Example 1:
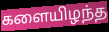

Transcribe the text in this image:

களையிழந்த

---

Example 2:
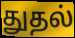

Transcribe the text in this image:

துதல்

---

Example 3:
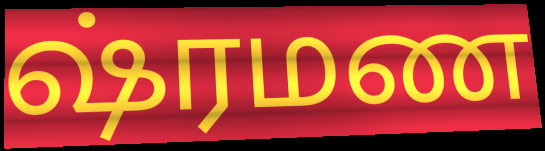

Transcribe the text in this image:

ஷ்ரமண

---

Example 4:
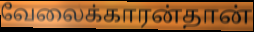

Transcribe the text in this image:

வேலைக்காரன்தான்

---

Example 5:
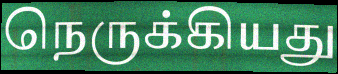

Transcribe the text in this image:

நெருக்கியது